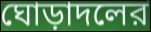
ঘোড়াদলের